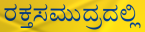
ರಕ್ತಸಮುದ್ರದಲ್ಲಿ